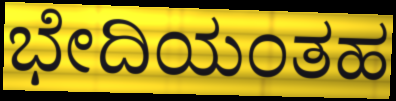
ಭೇದಿಯಂತಹ